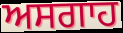
ਅਸਗਾਹ